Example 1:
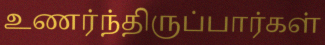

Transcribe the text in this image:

உணர்ந்திருப்பார்கள்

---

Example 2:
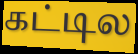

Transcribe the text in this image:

கட்டில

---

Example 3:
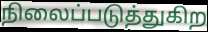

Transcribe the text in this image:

நிலைப்படுத்துகிற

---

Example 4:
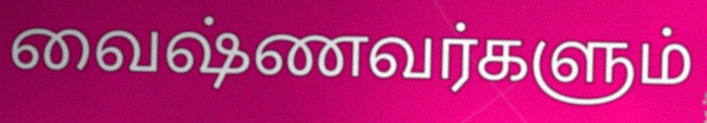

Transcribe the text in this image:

வைஷ்ணவர்களும்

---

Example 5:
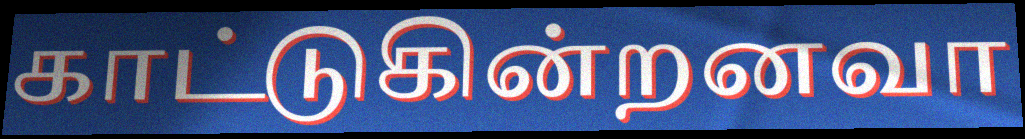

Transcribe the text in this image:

காட்டுகின்றனவா